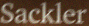
Sackler